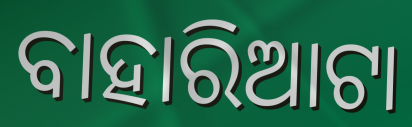
ବାହାରିଆଟା